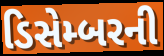
ડિસેમ્બરની